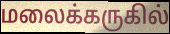
மலைக்கருகில்